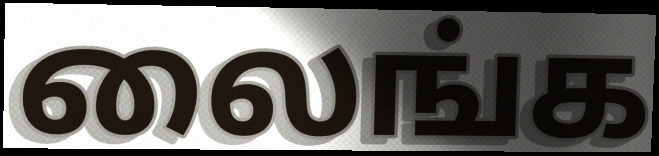
லைங்க